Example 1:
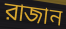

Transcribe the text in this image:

রাজান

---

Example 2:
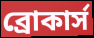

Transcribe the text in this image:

ব্রোকার্স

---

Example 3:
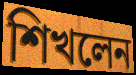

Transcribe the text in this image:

শিখলেন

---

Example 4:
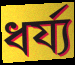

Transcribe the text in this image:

ধর্য্য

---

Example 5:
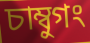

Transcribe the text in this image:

চাম্বুগং